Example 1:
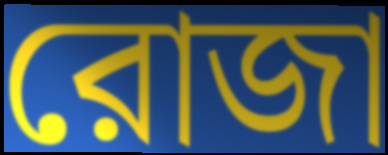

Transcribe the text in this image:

রোজা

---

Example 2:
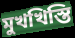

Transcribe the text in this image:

মুখখিস্তি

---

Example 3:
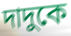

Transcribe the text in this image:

দাদুকে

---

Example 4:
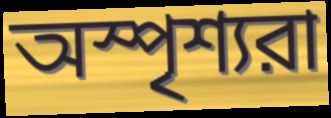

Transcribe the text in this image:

অস্পৃশ্যরা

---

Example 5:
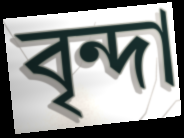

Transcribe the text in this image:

বৃন্দা